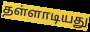
தள்ளாடியது